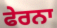
ਫੇਰਨਾ